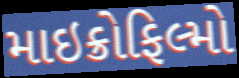
માઇક્રોફિલ્મો